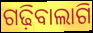
ଗଢ଼ିବାଲାଗି